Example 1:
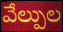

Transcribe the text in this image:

వేల్పుల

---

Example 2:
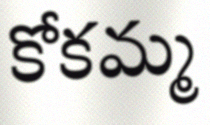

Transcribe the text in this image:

కోకమ్మ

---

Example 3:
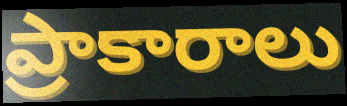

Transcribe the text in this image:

ప్రాకారాలు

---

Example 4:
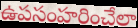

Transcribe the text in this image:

ఉపసంహరించేలా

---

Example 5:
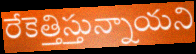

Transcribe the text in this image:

రేకెత్తిస్తున్నాయని